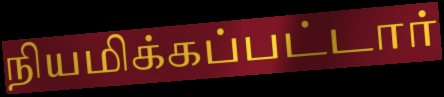
நியமிக்கப்பட்டார்